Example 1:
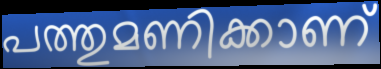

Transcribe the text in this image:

പത്തുമണിക്കാണ്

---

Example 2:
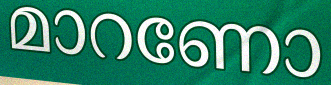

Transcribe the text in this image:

മാറണോ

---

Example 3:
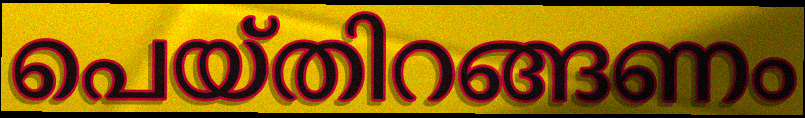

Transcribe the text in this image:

പെയ്തിറങ്ങണം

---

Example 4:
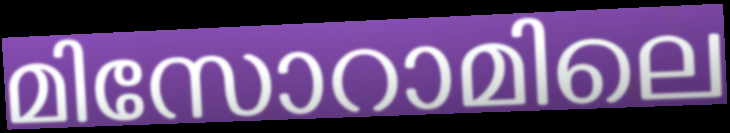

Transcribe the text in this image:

മിസോറാമിലെ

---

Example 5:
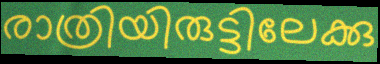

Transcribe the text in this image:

രാത്രിയിരുട്ടിലേക്കു